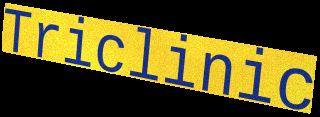
Triclinic